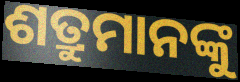
ଶତ୍ରୁମାନଙ୍କୁ